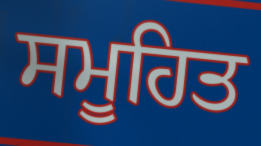
ਸਮੂਹਿਤ